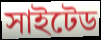
সাইটেড